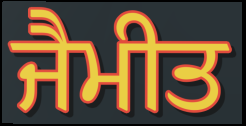
ਜੈਮੀਤ